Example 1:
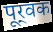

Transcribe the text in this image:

पूर्वक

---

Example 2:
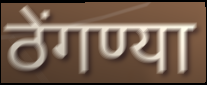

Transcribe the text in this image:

ठेंगण्या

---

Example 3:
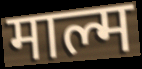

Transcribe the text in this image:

माल्म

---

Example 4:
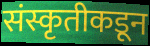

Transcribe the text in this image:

संस्कृतीकडून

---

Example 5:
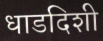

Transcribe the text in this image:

धाडदिशी